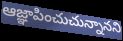
ఆజ్ఞాపించుచున్నానని